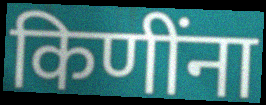
किणींना